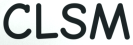
CLSM